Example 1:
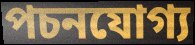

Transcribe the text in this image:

পচনযোগ্য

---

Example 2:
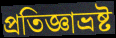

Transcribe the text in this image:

প্রতিজ্ঞাভ্রষ্ট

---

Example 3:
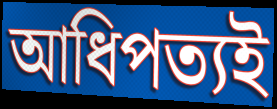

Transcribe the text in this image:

আধিপত্যই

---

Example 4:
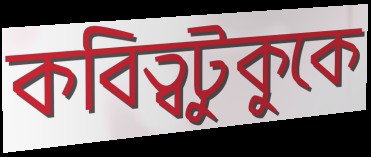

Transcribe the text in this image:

কবিত্বটুকুকে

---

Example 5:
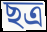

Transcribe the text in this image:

ছত্র